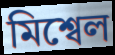
মিশ্বেল